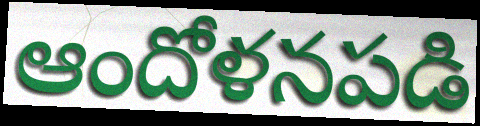
ఆందోళనపడి